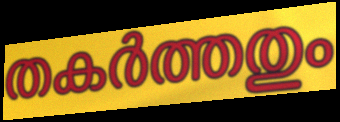
തകർത്തതും